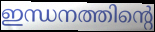
ഇന്ധനത്തിന്റെ